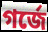
গর্জে